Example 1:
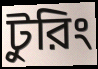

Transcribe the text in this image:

টুরিং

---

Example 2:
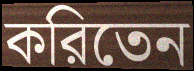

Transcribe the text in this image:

করিতেন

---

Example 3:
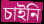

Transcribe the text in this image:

চাইনি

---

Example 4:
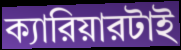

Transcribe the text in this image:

ক্যারিয়ারটাই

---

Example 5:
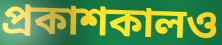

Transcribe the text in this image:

প্রকাশকালও